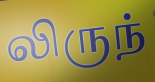
லிருந்